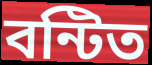
বন্টিত